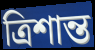
ত্রিশান্ত